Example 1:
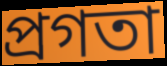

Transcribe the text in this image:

প্রগতা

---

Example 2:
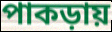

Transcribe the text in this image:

পাকড়ায়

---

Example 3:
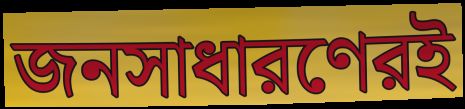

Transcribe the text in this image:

জনসাধারণেরই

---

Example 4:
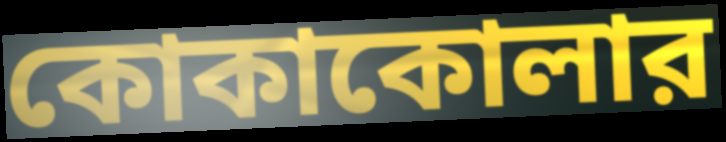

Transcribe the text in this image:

কোকাকোলার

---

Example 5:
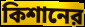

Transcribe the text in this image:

কিশানের